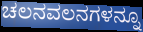
ಚಲನವಲನಗಳನ್ನೂ